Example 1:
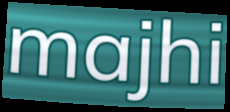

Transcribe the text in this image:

majhi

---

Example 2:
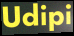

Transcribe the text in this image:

Udipi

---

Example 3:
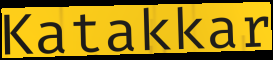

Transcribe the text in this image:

Katakkar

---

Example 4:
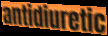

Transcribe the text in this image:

antidiuretic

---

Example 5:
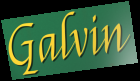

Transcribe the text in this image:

Galvin